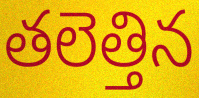
తలెత్తిన